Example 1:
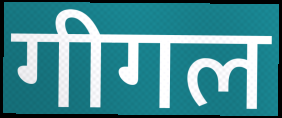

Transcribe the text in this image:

गीगल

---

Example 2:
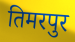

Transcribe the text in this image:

तिमरपुर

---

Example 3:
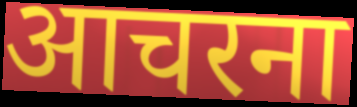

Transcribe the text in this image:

आचरना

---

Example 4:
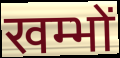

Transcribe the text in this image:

खम्भों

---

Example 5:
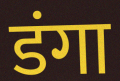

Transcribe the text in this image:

डंगा